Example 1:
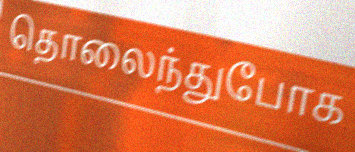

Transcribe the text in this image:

தொலைந்துபோக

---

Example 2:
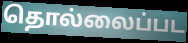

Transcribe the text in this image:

தொல்லைப்பட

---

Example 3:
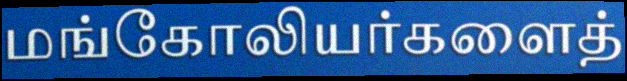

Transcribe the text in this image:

மங்கோலியர்களைத்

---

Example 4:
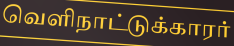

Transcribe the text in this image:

வெளிநாட்டுக்காரர்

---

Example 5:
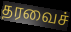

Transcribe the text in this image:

தரவைச்